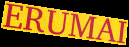
ERUMAI